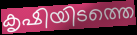
കൃഷിയിടത്തെ